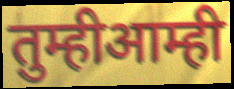
तुम्हीआम्ही